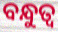
ବନ୍ଧୁତ୍ୱ